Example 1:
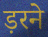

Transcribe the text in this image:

ड़रने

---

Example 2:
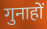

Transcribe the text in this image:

गुनाहों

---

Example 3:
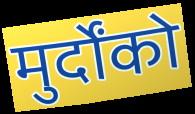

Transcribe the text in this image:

मुर्दोंको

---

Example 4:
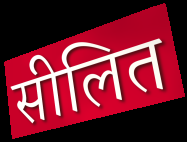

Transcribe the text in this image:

सीलित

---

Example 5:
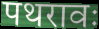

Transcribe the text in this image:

पथरावः